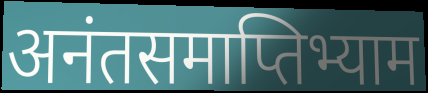
अनंतसमाप्तिभ्याम